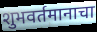
शुभवर्तमानाचा